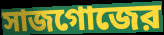
সাজগোজের